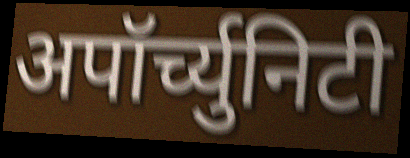
अपॉर्च्युनिटी